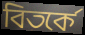
বিতর্কে